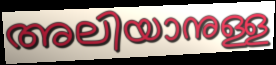
അലിയാനുള്ള